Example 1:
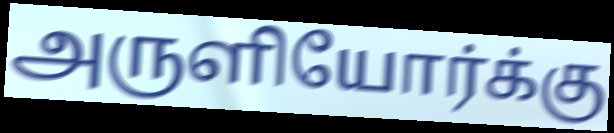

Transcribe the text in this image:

அருளியோர்க்கு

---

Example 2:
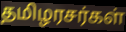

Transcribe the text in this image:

தமிழரசர்கள்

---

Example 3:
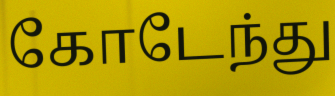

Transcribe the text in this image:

கோடேந்து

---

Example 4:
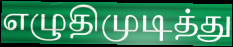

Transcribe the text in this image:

எழுதிமுடித்து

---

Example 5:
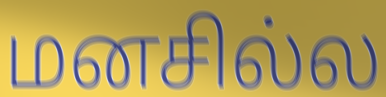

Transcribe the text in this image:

மனசில்ல